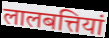
लालबत्तियां